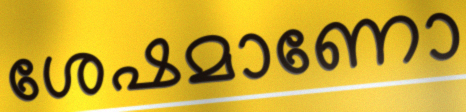
ശേഷമാണോ